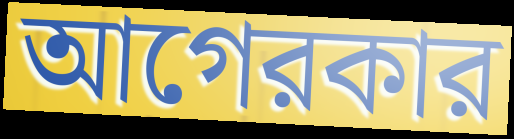
আগেরকার